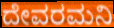
ದೇವರಮನಿ